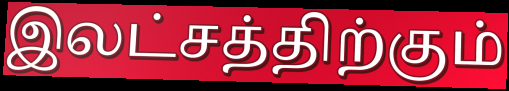
இலட்சத்திற்கும்